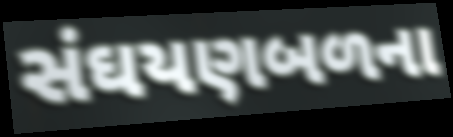
સંઘયણબળના